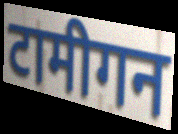
टामीगन